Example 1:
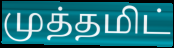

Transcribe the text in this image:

முத்தமிட்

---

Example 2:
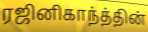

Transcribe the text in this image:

ரஜினிகாந்த்தின்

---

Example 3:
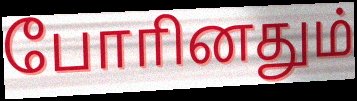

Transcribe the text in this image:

போரினதும்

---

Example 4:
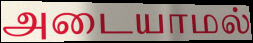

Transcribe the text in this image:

அடையாமல்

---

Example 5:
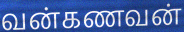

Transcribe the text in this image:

வன்கணவன்